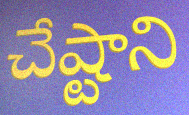
చేష్టాని